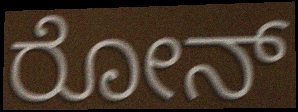
ರೋನ್